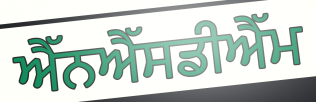
ਐੱਨਐੱਸਡੀਐੱਮ